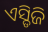
ଏସ୍ଡିଜି